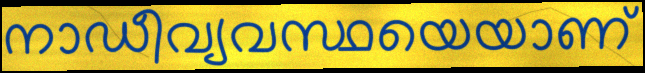
നാഡീവ്യവസ്ഥയെയാണ്